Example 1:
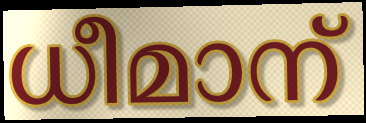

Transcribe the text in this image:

ധീമാന്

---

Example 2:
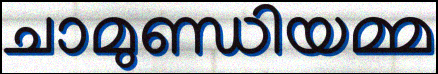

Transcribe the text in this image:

ചാമുണ്ഡിയമ്മ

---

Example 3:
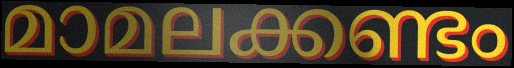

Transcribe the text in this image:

മാമലക്കണ്ടം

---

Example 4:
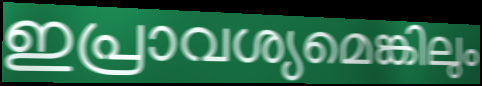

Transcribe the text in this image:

ഇപ്രാവശ്യമെങ്കിലും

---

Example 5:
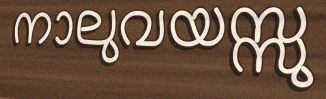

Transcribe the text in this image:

നാലുവയസ്സു